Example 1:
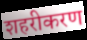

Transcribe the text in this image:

शहरीकरण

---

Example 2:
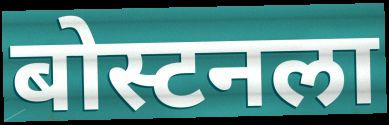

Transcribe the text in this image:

बोस्टनला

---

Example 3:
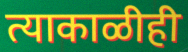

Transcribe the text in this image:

त्याकाळीही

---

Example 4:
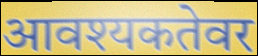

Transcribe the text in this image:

आवश्यकतेवर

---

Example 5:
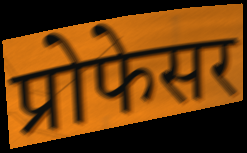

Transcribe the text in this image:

प्रोफेसर